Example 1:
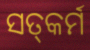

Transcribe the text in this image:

ସତ୍‍କର୍ମ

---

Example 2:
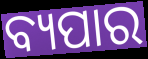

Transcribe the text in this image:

ବ୍ୟପାର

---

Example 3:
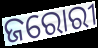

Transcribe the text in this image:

ଜରୋରୀ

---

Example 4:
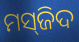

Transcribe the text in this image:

ମସ୍‌ଜିଦ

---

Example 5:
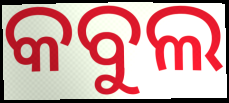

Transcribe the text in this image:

କବୁଲ